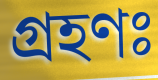
গ্রহণঃ